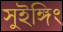
সুইঙ্গিং